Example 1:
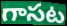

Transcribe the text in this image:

గాసట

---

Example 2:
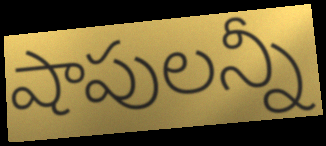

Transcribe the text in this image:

షాపులన్నీ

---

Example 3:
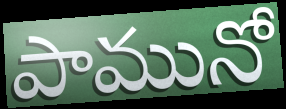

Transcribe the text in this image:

పామునో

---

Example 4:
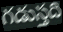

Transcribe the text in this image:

గడుస్తది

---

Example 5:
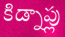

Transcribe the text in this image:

కిడ్నాప్లు